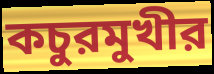
কচুরমুখীর